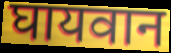
घायवान